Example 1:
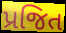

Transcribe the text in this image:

પ્રજિત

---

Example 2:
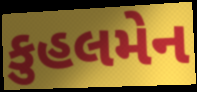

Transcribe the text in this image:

કુહલમેન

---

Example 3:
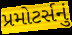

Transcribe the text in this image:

પ્રમોટર્સનું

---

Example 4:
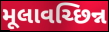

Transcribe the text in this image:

મૂલાવચ્છિન્ન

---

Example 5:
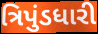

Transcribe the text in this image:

ત્રિપુંડધારી